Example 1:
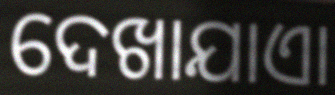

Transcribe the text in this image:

ଦେଖାଯାଏା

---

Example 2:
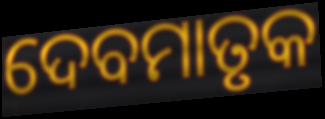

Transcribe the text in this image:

ଦେବମାତୃକ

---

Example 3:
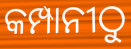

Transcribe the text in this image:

କମ୍ପାନୀଠୁ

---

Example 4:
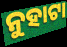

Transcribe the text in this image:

ନୁହାଟା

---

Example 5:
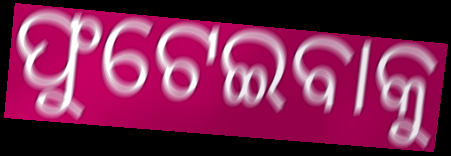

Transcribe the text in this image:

ଫୁଟେଇବାକୁ